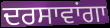
ਦਰਸਾਵਾਂਗਾ